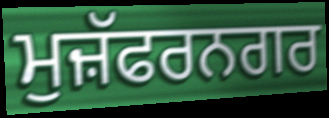
ਮੁਜ਼ੱਫਰਨਗਰ